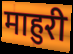
माहुरी